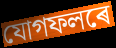
যোগফলৰে